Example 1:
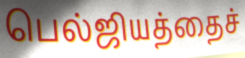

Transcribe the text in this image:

பெல்ஜியத்தைச்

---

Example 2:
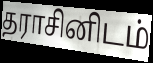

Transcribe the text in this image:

தராசினிடம்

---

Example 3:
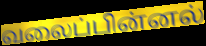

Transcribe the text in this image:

வலைப்பின்னல்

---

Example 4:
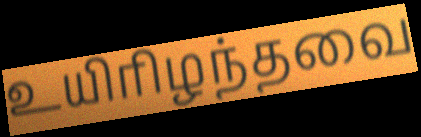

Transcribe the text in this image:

உயிரிழந்தவை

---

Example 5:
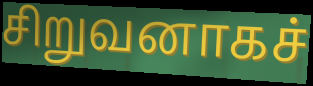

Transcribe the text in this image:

சிறுவனாகச்